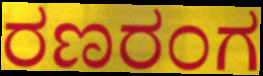
ರಣರಂಗ